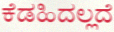
ಕೆಡಹಿದಲ್ಲದೆ